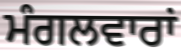
ਮੰਗਲਵਾਰਾਂ